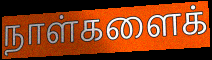
நாள்களைக்